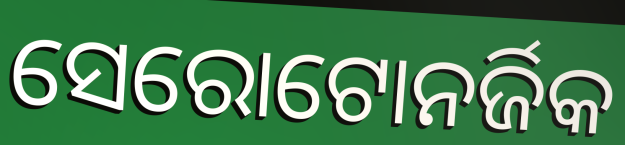
ସେରୋଟୋନର୍ଜିକ